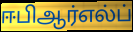
ஈபிஆர்எல்ப்